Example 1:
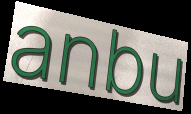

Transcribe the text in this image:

anbu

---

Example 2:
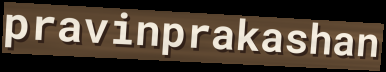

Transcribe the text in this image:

pravinprakashan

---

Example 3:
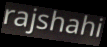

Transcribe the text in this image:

rajshahi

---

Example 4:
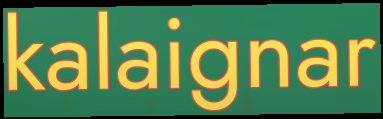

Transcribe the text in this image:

kalaignar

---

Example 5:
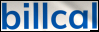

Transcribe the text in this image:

billcal